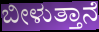
ಬೀಳುತ್ತಾನೆ